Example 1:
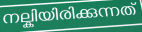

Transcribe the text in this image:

നല്കിയിരിക്കുന്നത്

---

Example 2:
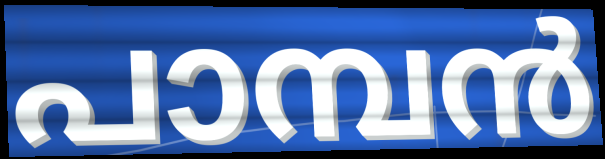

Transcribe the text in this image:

പാമ്പൻ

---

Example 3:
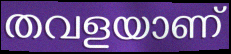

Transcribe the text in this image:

തവളയാണ്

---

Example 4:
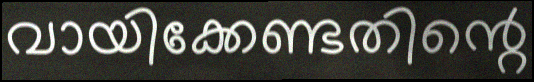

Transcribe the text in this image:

വായിക്കേണ്ടതിന്റെ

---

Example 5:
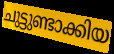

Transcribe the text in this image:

ചുട്ടുണ്ടാക്കിയ